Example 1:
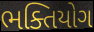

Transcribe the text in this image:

ભક્તિયોગ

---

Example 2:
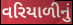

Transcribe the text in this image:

વરિયાળીનું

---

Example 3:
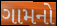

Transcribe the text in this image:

ગામનો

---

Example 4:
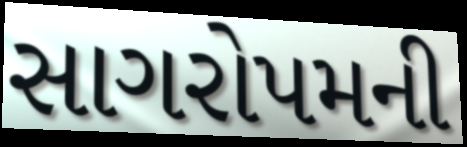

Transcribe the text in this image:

સાગરોપમની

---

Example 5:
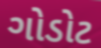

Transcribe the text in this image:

ગોડોટ